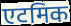
एटमिक